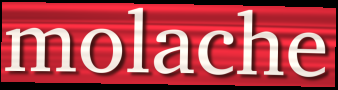
molache